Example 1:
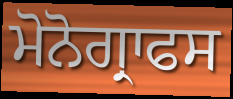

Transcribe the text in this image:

ਮੋਨੋਗ੍ਰਾਫਸ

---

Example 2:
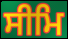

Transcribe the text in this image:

ਸੀਮਿ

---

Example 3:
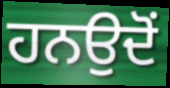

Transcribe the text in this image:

ਹਨਉਦੋਂ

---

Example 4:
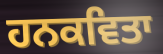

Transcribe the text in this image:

ਹਨਕਵਿਤਾ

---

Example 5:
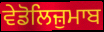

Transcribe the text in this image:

ਵੇਡੋਲਿਜ਼ੁਮਾਬ